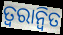
ତ୍ବରାନ୍ବିତ